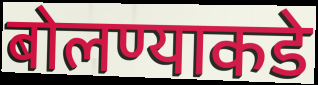
बोलण्याकडे